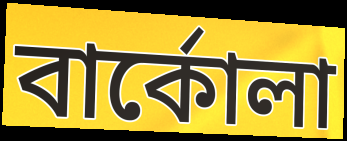
বার্কোলা